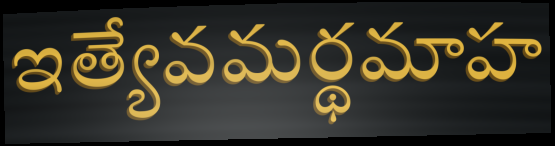
ఇత్యేవమర్థమాహ